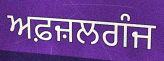
ਅਫ਼ਜ਼ਲਗੰਜ